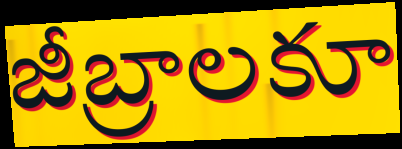
జీబ్రాలకూ